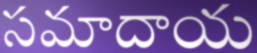
సమాదాయ